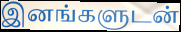
இனங்களுடன்